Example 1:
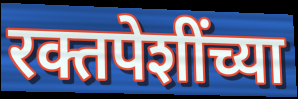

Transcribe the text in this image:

रक्तपेशींच्या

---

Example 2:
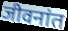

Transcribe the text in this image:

जीवनांत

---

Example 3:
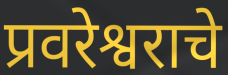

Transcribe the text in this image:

प्रवरेश्वराचे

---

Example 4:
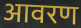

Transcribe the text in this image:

आवरण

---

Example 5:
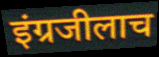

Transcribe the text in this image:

इंग्रजीलाच